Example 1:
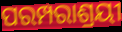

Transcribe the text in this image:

ପରମ୍ପରାଶ୍ରୟୀ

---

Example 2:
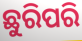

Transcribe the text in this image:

ଛୁରିପରି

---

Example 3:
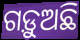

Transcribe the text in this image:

ଗଡ଼ୁଅଛି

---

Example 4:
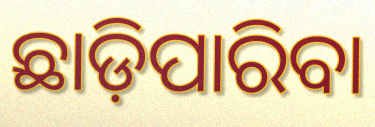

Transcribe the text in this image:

ଛାଡ଼ିପାରିବା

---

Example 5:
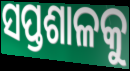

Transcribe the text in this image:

ସପ୍ତଶାଳକୁ